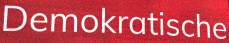
Demokratische